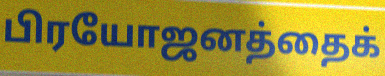
பிரயோஜனத்தைக்